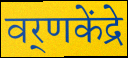
वर्णकेंद्रे